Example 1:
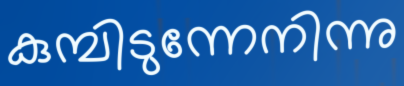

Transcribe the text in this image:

കുമ്പിടുന്നേനിന്നു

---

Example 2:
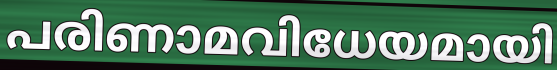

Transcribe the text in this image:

പരിണാമവിധേയമായി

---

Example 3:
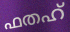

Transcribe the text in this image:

ഫതഹ്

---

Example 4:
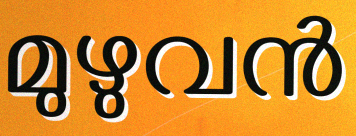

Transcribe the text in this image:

മുഴുവൻ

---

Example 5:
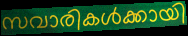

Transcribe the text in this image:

സവാരികൾക്കായി